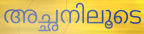
അച്ഛനിലൂടെ